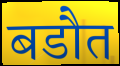
बडौत